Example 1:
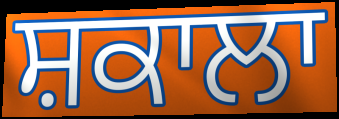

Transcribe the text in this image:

ਸ਼ਕਾਲਾ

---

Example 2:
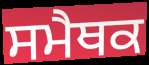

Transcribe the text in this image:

ਸਮੈਥਕ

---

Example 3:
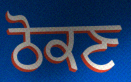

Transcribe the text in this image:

ਠੋਕਣ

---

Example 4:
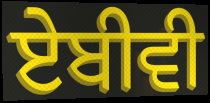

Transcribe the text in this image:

ਏਬੀਵੀ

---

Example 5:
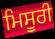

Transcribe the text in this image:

ਮਿਸੂਰੀ